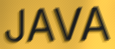
JAVA